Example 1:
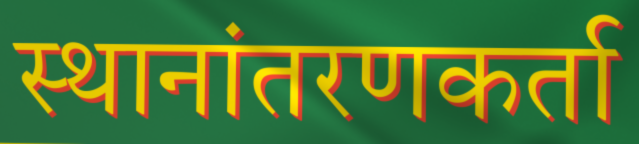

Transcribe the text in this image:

स्थानांतरणकर्ता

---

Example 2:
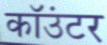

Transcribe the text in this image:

कॉउंटर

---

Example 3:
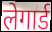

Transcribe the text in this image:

लेगार्ड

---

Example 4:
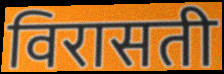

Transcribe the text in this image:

विरासती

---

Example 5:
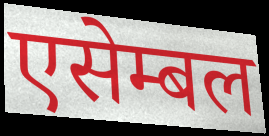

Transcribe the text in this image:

एसेम्बल